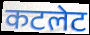
कटलेट